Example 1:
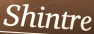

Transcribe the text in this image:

Shintre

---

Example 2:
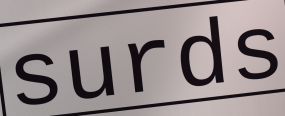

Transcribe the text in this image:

surds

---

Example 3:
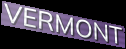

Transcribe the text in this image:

VERMONT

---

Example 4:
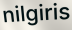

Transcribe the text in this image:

nilgiris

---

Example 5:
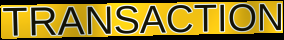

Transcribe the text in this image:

TRANSACTION